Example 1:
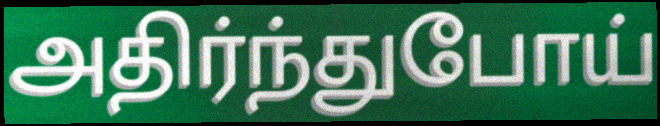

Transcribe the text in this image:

அதிர்ந்துபோய்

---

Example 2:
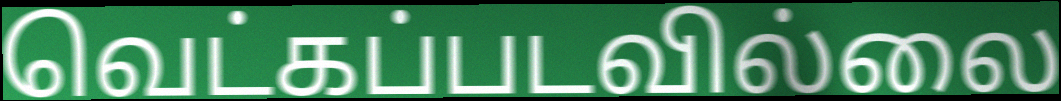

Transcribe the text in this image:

வெட்கப்படவில்லை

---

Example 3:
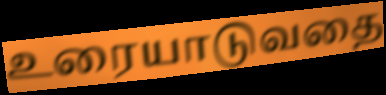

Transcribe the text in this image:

உரையாடுவதை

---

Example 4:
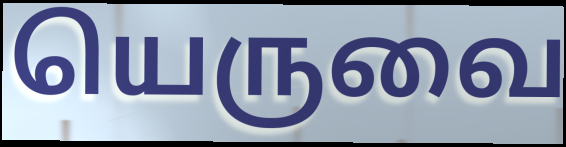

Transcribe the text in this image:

யெருவை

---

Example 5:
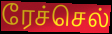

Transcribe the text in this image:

ரேச்செல்